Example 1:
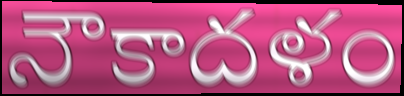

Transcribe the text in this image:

నౌకాదళం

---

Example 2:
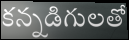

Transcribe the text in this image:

కన్నడిగులతో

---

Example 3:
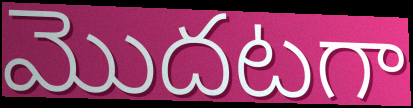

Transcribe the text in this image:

మొదటగా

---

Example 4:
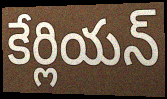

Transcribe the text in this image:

కేర్లియన్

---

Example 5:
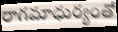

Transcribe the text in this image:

రాగమాధుర్యంతో